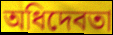
অধিদেবতা